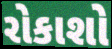
રોકાશો